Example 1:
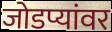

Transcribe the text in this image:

जोडप्यांवर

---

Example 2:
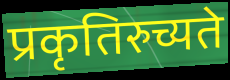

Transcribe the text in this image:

प्रकृतिरुच्यते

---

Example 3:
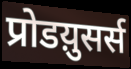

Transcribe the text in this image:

प्रोडय़ुसर्स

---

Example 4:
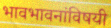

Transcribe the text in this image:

भावभावनांविषयी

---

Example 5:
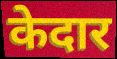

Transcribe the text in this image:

केदार